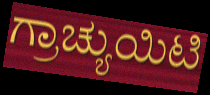
ಗ್ರಾಚ್ಯುಯಿಟಿ